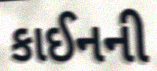
કાઈનની